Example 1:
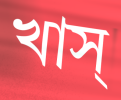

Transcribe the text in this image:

খাস্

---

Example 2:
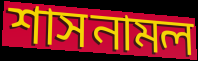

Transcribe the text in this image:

শাসনামল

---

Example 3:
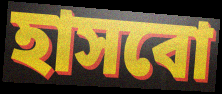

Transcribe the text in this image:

হাসবো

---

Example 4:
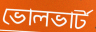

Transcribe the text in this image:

ভোলভার্ট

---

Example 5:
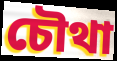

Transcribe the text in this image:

চৌথা